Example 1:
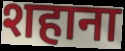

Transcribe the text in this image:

शहाना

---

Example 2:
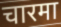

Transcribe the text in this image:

चारमा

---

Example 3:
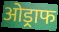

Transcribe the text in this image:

ओड्राफ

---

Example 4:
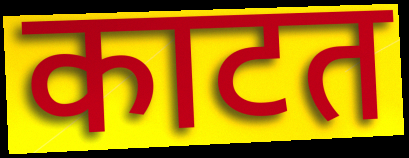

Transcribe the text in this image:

काटत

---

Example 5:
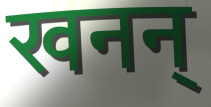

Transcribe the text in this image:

खनन्